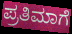
ಪ್ರತಿಮಾಗೆ